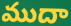
ముదా